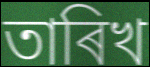
তাৰিখ